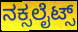
ನಕ್ಸಲೈಟ್ಸ್